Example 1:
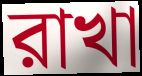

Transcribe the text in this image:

রাখা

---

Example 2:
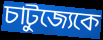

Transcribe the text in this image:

চাটুজ্যেকে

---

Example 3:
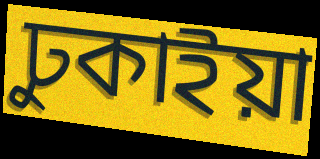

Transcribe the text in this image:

ঢুকাইয়া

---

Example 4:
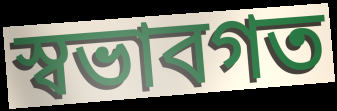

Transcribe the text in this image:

স্বভাবগত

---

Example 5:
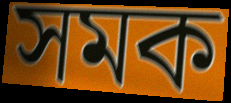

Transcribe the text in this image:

সমক